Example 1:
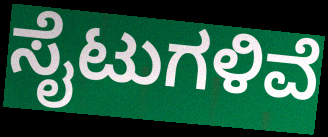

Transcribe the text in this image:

ಸೈಟುಗಳಿವೆ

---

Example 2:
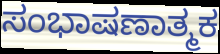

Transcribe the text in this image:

ಸಂಭಾಷಣಾತ್ಮಕ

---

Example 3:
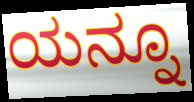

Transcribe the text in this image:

ಯನ್ನೂ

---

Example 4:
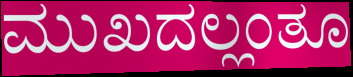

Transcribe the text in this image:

ಮುಖದಲ್ಲಂತೂ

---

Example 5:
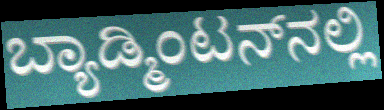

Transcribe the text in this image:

ಬ್ಯಾಡ್ಮಿಂಟನ್‌ನಲ್ಲಿ